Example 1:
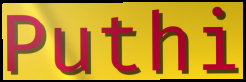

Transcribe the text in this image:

Puthi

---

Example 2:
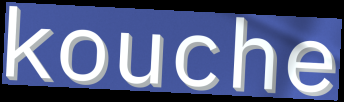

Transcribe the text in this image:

kouche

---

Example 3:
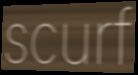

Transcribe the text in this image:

scurf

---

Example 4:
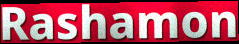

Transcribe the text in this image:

Rashamon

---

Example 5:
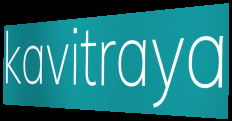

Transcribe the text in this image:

kavitraya